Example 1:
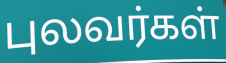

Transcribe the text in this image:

புலவர்கள்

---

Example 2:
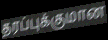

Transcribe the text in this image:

தரப்புக்குமான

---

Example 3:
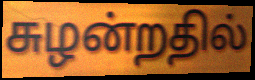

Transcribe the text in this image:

சுழன்றதில்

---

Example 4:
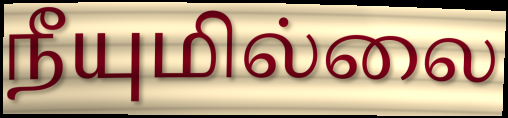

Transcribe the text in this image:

நீயுமில்லை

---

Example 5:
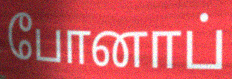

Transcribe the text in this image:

போனாப்